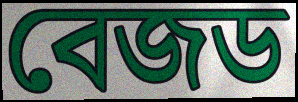
বেজড